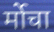
र्मोचा